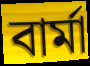
বাৰ্মা